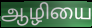
ஆழியை